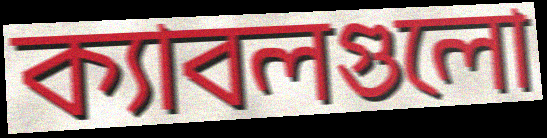
ক্যাবলগুলো